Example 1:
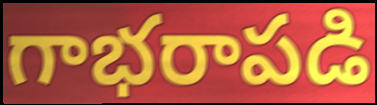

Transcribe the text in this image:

గాభరాపడి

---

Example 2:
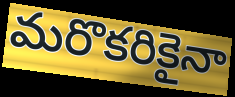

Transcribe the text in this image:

మరొకరికైనా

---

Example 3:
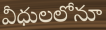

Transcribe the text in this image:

వీధులలోనూ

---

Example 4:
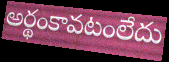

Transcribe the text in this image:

అర్థంకావటంలేదు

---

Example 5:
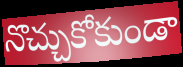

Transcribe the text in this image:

నొచ్చుకోకుండా